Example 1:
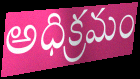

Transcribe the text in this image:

అధిక్రమం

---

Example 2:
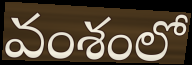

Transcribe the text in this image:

వంశంలో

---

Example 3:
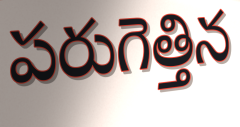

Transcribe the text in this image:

పరుగెత్తిన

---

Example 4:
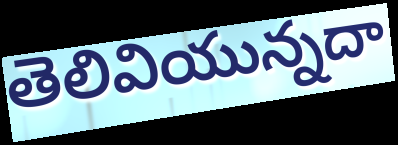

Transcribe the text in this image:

తెలివియున్నదా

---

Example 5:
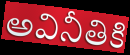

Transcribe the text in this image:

అవినీతికి